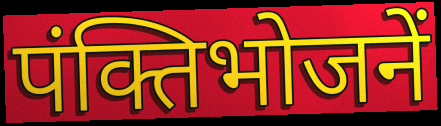
पंक्तिभोजनें